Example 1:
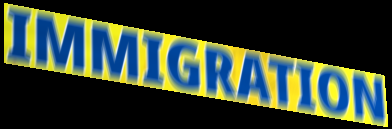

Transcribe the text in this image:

IMMIGRATION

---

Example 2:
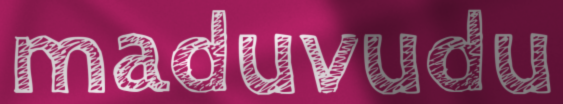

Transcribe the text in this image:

maduvudu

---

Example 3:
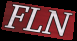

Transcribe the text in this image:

FLN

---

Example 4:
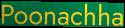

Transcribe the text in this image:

Poonachha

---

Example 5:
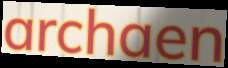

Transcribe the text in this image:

archaen